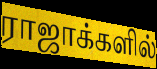
ராஜாக்களில்